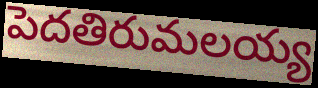
పెదతిరుమలయ్య